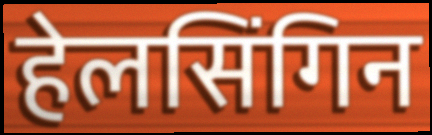
हेलसिंगिन